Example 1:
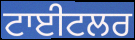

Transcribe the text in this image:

ਟਾਈਟਲਰ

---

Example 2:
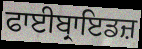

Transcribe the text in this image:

ਫਾਈਬ੍ਰਾਇਡਜ਼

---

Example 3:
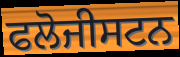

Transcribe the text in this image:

ਫਲੋਜੀਸਟਨ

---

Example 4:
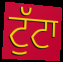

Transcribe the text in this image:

ਟੁੱਟਾ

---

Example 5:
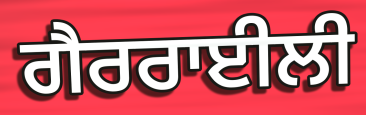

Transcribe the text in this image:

ਗੈਰਰਾਈਲੀ